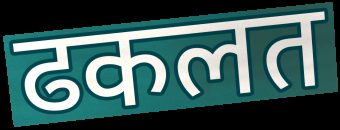
ढकलत